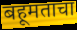
बहूमताचा